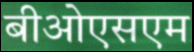
बीओएसएम